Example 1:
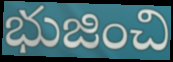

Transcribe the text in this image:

భుజించి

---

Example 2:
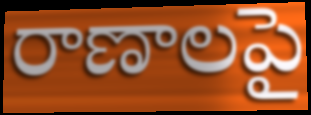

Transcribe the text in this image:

రాణాలపై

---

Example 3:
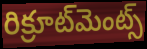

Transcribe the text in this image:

రిక్రూట్‌మెంట్స్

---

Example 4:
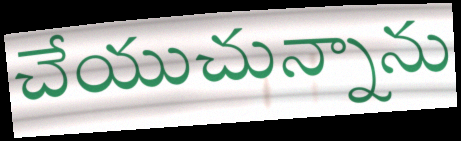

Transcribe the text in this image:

చేయుచున్నాను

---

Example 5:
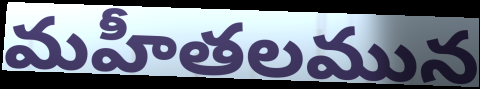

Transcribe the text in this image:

మహీతలమున